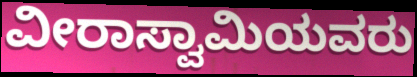
ವೀರಾಸ್ವಾಮಿಯವರು